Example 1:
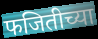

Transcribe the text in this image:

फजितीच्या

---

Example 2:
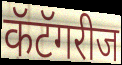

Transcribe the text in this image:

कॅटॅगरीज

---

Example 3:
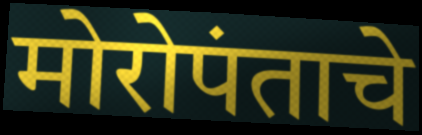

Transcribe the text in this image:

मोरोपंताचे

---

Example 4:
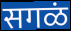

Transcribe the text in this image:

सगळं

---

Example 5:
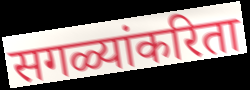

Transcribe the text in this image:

सगळ्यांकरिता